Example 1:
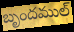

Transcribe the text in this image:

బృందముల్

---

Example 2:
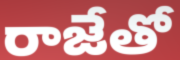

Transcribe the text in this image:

రాజేతో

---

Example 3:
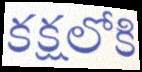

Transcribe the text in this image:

కక్షలోకి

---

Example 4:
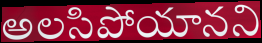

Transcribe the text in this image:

అలసిపోయానని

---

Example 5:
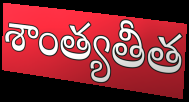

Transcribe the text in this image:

శాంత్యతీత